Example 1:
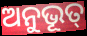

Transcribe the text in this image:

ଅନୁଭୂତ୍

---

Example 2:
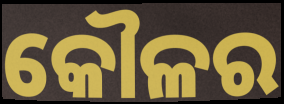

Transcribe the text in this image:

କୌଳର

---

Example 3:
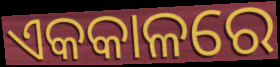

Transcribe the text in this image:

ଏକକାଳରେ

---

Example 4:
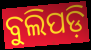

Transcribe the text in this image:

ବୁଲିପଡ଼ି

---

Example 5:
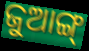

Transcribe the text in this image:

ଜୁଆଙ୍ଗ୍